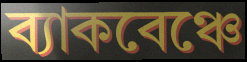
ব্যাকবেঞ্চে